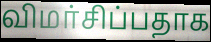
விமர்சிப்பதாக